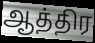
ஆத்திர